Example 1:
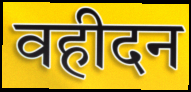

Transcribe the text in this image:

वहीदन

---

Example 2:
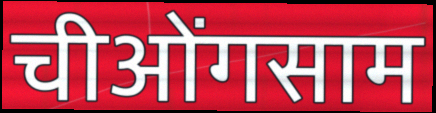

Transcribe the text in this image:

चीओंगसाम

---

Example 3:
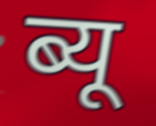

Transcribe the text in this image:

ब्यू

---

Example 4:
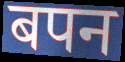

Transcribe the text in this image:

बपन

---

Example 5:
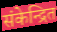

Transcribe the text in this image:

संकेन्द्रित